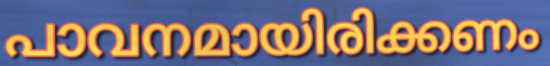
പാവനമായിരിക്കണം